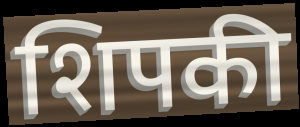
शिपकी